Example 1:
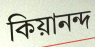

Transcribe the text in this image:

কিয়ানন্দ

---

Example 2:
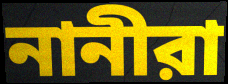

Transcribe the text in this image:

নানীরা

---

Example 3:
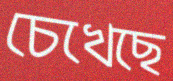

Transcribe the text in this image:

চেখেছে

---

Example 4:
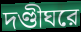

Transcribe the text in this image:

দণ্ডীঘরে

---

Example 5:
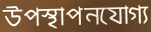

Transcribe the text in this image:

উপস্থাপনযোগ্য